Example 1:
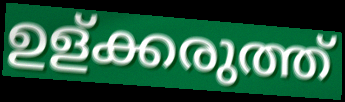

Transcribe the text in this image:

ഉള്ക്കരുത്ത്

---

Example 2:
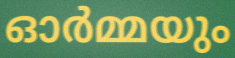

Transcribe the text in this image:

ഓർമ്മയും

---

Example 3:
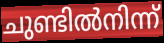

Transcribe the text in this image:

ചുണ്ടിൽനിന്ന്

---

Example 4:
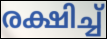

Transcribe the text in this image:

രക്ഷിച്ച്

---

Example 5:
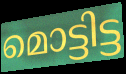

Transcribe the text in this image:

മൊട്ടിട്ട